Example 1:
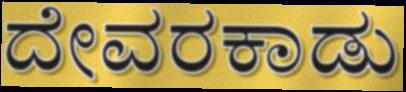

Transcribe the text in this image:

ದೇವರಕಾಡು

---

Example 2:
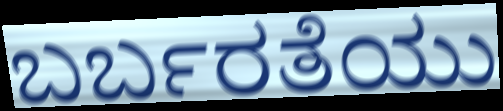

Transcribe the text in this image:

ಬರ್ಬರತೆಯು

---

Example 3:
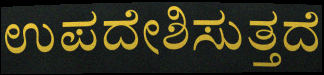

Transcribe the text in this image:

ಉಪದೇಶಿಸುತ್ತದೆ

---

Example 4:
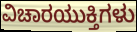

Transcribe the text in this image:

ವಿಚಾರಯುಕ್ತಿಗಳು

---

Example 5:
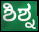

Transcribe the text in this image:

ಶಿಶ್ನ